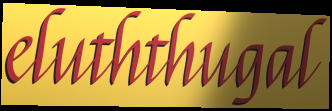
eluththugal